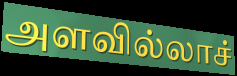
அளவில்லாச்